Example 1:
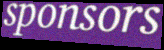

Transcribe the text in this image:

sponsors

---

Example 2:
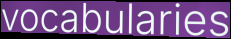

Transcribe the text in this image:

vocabularies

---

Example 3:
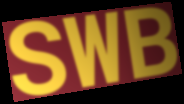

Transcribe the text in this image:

SWB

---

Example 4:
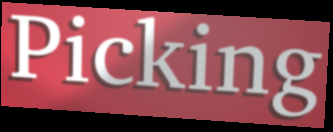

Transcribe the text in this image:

Picking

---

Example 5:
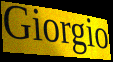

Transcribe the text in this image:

Giorgio